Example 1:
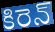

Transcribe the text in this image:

కిరెన్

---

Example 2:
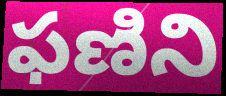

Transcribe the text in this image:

ఫణిని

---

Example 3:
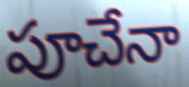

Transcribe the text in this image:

పూచేనా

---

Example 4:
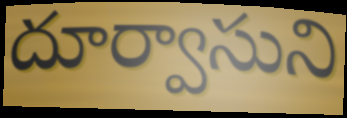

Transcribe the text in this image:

దూర్వాసుని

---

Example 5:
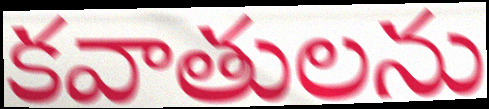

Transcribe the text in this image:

కవాతులను